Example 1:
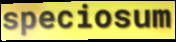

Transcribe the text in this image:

speciosum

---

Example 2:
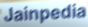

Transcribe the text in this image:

Jainpedia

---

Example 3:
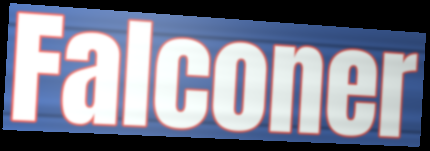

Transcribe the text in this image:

Falconer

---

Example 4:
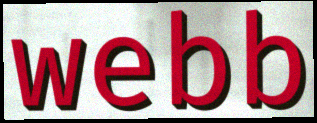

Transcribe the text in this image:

webb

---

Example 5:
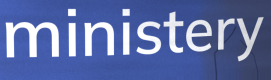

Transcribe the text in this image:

ministery